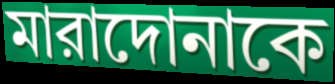
মারাদোনাকে